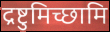
द्रष्टुमिच्छामि